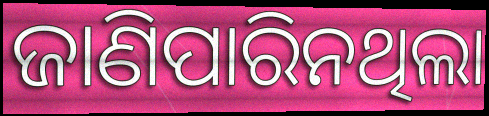
ଜାଣିପାରିନଥିଲା